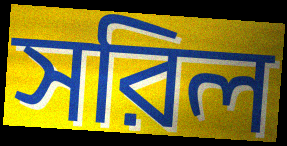
সরিল